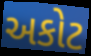
અકોટ